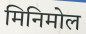
मिनिमोल